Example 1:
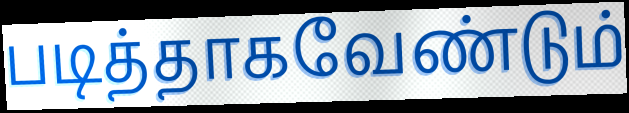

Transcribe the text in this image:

படித்தாகவேண்டும்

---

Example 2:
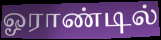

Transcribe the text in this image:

ஓராண்டில்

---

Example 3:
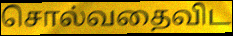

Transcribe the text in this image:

சொல்வதைவிட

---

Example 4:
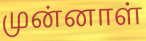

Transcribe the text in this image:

முன்னாள்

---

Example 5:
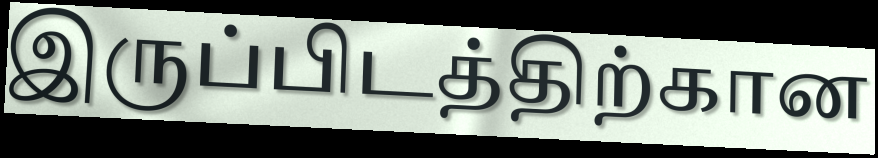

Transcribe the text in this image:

இருப்பிடத்திற்கான